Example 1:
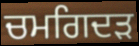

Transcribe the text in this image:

ਚਮਗਿਦੜ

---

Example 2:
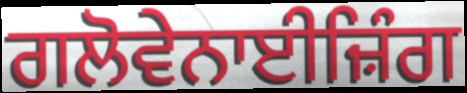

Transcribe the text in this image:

ਗਲੋਵੇਨਾਈਜ਼ਿੰਗ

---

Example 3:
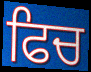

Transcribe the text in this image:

ਫਿਚ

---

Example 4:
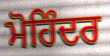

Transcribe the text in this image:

ਮੋਹਿੰਦਰ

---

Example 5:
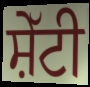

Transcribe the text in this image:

ਸ਼ੇੱਟੀ